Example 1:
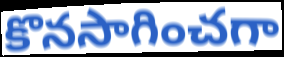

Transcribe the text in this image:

కొనసాగించగా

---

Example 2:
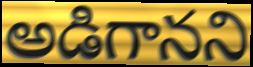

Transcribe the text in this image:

అడిగానని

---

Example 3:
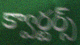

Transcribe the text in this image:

క్వార్టర్స్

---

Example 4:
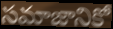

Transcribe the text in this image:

సమాజానికో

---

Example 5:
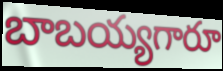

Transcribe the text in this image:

బాబయ్యగారూ